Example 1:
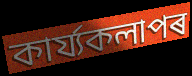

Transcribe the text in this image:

কাৰ্য্যকলাপৰ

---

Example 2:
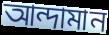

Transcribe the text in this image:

আন্দামান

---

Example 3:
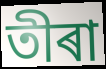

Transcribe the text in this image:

তীৰা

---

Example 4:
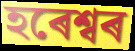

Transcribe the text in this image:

হৰেশ্বৰ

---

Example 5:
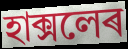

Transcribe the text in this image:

হাক্সলেৰ